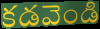
కడవెండి